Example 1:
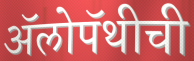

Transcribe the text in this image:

ॲलोपॅथीची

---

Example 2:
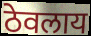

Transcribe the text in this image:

ठेवलाय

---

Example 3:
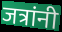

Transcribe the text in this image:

जत्रांनी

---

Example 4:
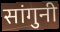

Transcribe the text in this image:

सांगुनी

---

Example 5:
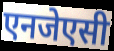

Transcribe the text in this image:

एनजेएसी